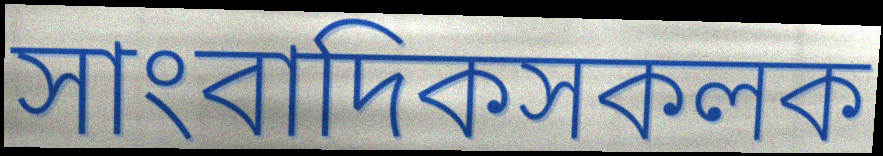
সাংবাদিকসকলক